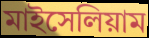
মাইসেলিয়াম